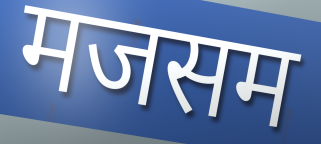
मजसम